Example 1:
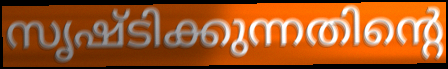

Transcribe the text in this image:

സൃഷ്ടിക്കുന്നതിന്റെ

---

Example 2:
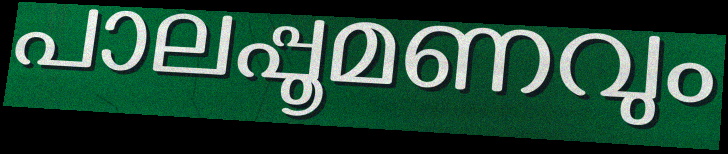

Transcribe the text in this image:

പാലപ്പൂമണവും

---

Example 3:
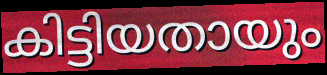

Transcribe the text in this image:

കിട്ടിയതായും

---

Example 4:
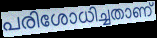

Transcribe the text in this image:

പരിശോധിച്ചതാണ്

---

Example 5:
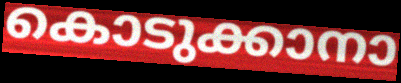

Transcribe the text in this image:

കൊടുക്കാനാ